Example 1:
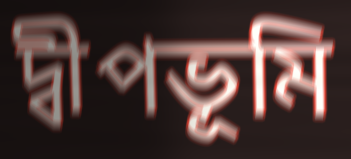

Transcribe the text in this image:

দ্বীপভূমি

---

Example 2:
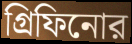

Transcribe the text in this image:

গ্রিফিনোর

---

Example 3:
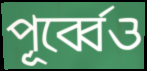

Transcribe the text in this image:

পূর্ব্বেও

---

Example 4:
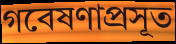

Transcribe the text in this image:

গবেষণাপ্রসূত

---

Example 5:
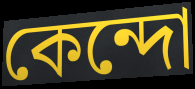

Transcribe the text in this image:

কেন্দো